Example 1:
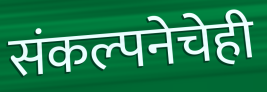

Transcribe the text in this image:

संकल्पनेचेही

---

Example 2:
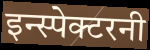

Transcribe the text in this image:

इन्स्पेक्टरनी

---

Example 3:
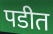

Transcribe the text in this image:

पडीत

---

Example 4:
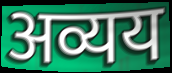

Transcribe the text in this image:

अव्यय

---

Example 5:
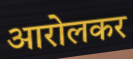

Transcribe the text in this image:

आरोलकर